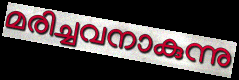
മരിച്ചവനാകുന്നു